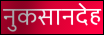
नुकसानदेह